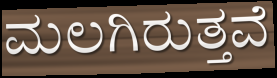
ಮಲಗಿರುತ್ತವೆ